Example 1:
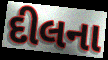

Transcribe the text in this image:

દીલના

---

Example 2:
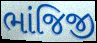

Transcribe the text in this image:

ભાંજિજી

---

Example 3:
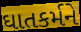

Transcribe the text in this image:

ઘાતકર્મને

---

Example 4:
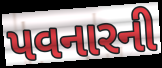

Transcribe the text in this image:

પવનારની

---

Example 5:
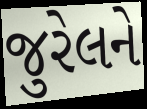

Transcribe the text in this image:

જુરેલને